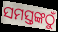
ସମସ୍ତଙ୍କଠୁଁ